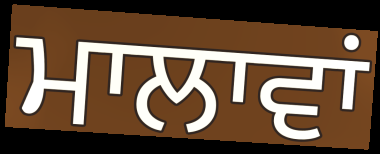
ਮਾਲਾਵਾਂ